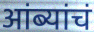
आंब्यांचं